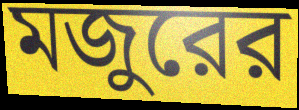
মজুরের